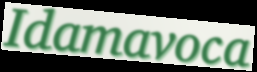
Idamavoca